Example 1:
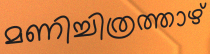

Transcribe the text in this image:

മണിച്ചിത്രത്താഴ്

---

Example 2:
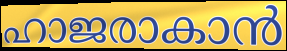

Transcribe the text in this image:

ഹാജരാകാൻ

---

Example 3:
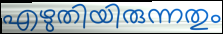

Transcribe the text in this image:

എഴുതിയിരുന്നതും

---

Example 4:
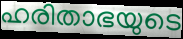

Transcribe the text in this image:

ഹരിതാഭയുടെ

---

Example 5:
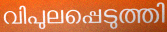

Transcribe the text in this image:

വിപുലപ്പെടുത്തി